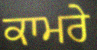
ਕਾਮਰੇ